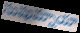
సుషుమ్నాయా